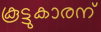
കൂട്ടുകാരന്